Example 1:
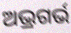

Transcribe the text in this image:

ଅଭ୍ରଗର୍ଭ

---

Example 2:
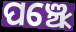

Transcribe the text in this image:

ପଞ୍ଝେ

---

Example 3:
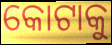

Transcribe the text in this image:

କୋଟାକୁ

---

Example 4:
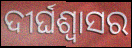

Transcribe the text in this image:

ଦୀର୍ଘଶ୍ବାସର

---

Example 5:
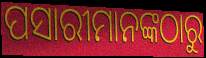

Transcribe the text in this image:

ପସାରୀମାନଙ୍କଠାରୁ